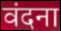
वंदना